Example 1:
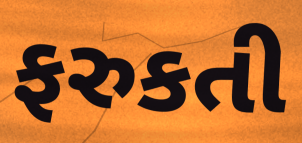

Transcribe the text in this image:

ફરુકતી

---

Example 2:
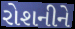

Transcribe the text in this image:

રોશનીને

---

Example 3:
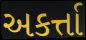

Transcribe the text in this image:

અકર્ત્તા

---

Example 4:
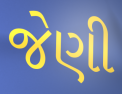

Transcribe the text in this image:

જેણી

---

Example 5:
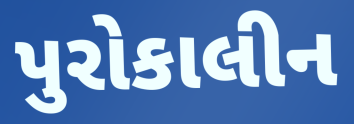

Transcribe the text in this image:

પુરોકાલીન